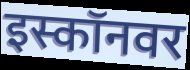
इस्कॉनवर